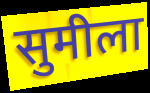
सुमीला